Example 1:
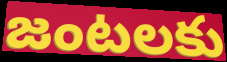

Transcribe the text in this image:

జంటలకు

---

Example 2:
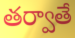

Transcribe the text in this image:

తర్వాతే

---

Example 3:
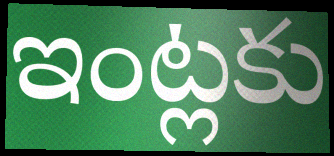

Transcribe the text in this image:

ఇంట్లకు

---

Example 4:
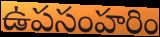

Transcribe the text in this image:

ఉపసంహరిం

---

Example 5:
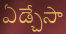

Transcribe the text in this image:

ఏడ్చేసా